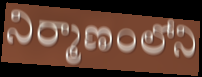
నిర్మాణంలోని